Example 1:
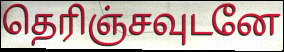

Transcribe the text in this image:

தெரிஞ்சவுடனே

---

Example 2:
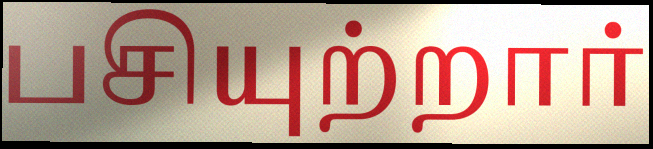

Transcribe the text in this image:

பசியுற்றார்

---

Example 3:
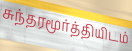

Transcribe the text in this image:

சுந்தரமூர்த்தியிடம்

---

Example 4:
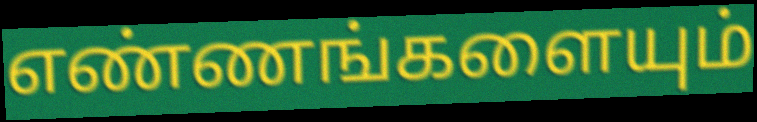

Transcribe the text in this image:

எண்ணங்களையும்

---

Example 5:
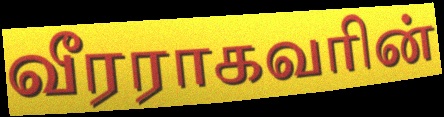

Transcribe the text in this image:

வீரராகவரின்